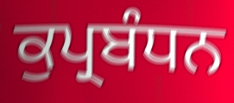
ਕੁਪ੍ਰਬੰਧਨ